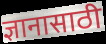
ज्ञानासाठी